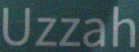
Uzzah